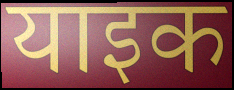
याइक